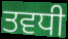
ਤਵਧੀ